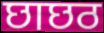
छाछठ